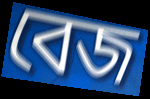
বেজ